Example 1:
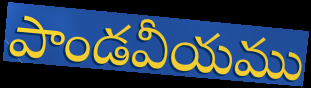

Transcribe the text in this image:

పాండవీయము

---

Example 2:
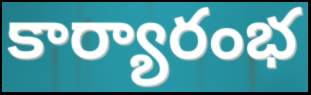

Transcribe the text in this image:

కార్యారంభ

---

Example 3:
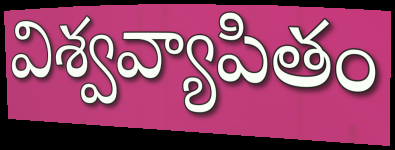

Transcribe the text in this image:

విశ్వవ్యాపితం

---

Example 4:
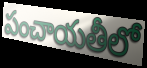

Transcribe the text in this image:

పంచాయతీలో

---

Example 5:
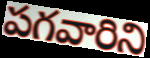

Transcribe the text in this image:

పగవారిని